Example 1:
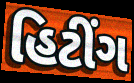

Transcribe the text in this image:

હિટીંગ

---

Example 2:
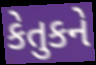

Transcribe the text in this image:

કેતુકને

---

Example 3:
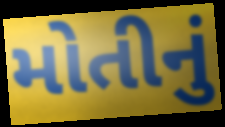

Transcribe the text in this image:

મોતીનું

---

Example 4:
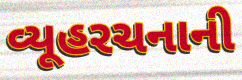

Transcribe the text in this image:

વ્યૂહરચનાની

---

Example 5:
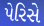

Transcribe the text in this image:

પેરિસે